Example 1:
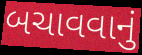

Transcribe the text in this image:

બચાવવાનું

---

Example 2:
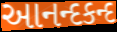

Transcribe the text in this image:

આનન્દકન્દ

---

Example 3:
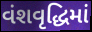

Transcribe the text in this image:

વંશવૃદ્ધિમાં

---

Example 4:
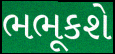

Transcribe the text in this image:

ભભૂકશે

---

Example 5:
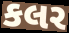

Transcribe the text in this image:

કલર